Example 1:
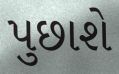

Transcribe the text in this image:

પુછાશે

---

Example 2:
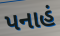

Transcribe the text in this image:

પનાહં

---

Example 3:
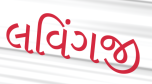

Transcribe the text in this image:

લવિંગજી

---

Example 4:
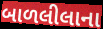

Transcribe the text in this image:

બાળલીલાના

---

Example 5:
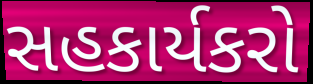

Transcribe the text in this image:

સહકાર્યકરો